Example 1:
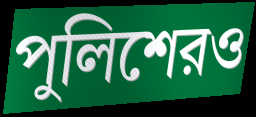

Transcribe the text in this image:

পুলিশেরও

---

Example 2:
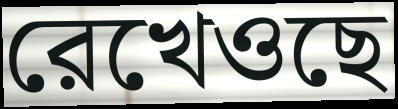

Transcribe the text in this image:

রেখেওছে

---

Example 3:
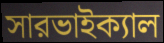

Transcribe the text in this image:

সারভাইক্যাল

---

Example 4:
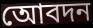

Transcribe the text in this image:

আেবদন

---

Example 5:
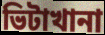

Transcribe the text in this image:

ভিটাখানা